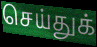
செய்துக்